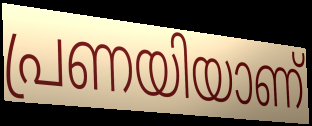
പ്രണയിയാണ്